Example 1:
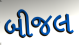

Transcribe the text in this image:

બીજલ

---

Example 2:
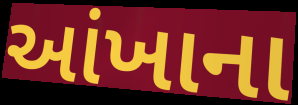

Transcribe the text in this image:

આંખાના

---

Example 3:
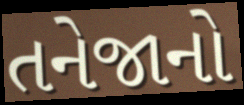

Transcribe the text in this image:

તનેજાનો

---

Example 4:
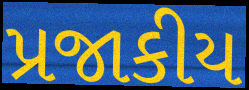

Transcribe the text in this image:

પ્રજાકીય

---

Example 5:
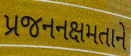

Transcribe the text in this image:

પ્રજનનક્ષમતાને